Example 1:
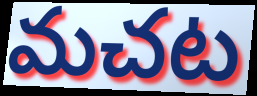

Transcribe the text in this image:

మచట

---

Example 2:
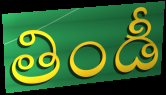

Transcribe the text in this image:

తిండీ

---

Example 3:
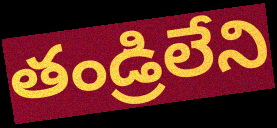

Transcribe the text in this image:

తండ్రిలేని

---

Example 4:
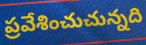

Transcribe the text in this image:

ప్రవేశించుచున్నది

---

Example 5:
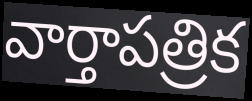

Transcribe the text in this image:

వార్తాపత్రిక